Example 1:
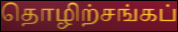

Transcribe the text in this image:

தொழிற்சங்கப்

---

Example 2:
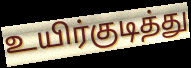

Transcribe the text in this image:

உயிர்குடித்து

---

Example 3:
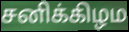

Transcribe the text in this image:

சனிக்கிழம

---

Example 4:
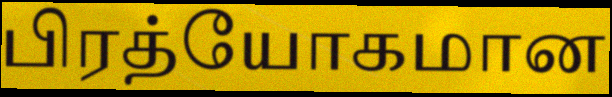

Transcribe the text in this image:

பிரத்யோகமான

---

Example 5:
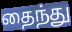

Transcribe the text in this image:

தைந்து